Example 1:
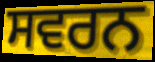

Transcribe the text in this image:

ਸਵਰਨ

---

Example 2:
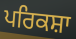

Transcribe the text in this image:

ਪਰਿਕਸ਼ਾ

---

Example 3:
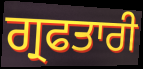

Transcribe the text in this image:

ਗ੍ਰਫਤਾਰੀ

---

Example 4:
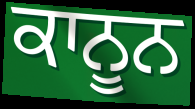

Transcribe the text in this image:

ਕਾਨੂਨ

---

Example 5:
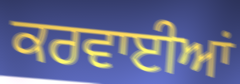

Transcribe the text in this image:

ਕਰਵਾਈਆਂ